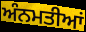
ਅੰਨਮਤੀਆਂ